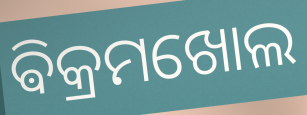
ଵିକ୍ରମଖୋଲ